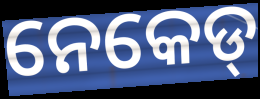
ନେକେଡ୍